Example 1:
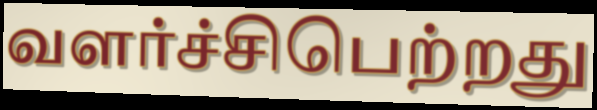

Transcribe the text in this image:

வளர்ச்சிபெற்றது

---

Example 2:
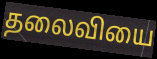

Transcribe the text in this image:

தலைவியை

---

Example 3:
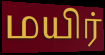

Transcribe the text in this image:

மயிர்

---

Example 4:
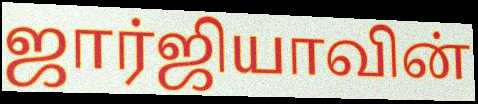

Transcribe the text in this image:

ஜார்ஜியாவின்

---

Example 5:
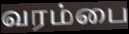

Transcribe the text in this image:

வரம்பை